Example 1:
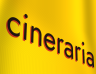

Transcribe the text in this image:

cineraria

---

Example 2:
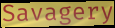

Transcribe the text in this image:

Savagery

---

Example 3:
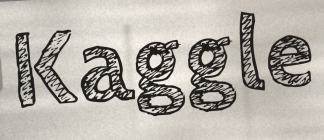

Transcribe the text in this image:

Kaggle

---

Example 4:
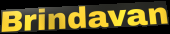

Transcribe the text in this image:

Brindavan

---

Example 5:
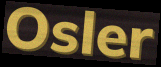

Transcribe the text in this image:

Osler